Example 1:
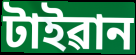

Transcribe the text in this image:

টাইৱান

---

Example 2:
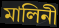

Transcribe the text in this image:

মালিনী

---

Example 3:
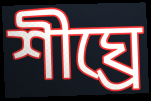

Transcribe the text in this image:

শীঘ্ৰে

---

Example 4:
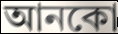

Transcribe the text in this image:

আনকো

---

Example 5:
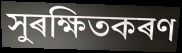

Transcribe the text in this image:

সুৰক্ষিতকৰণ